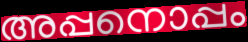
അപ്പനൊപ്പം